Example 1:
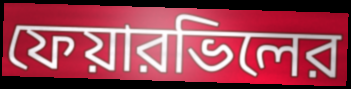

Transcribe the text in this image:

ফেয়ারভিলের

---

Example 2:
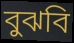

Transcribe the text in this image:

বুঝবি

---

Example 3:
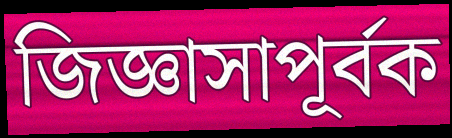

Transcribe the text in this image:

জিজ্ঞাসাপূর্বক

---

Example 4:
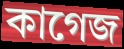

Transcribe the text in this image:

কাগেজ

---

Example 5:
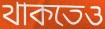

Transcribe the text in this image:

থাকতেও